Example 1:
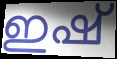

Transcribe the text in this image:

ഇഷ്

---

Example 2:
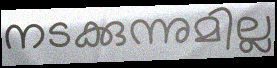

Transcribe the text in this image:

നടക്കുന്നുമില്ല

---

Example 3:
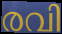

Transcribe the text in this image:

രവി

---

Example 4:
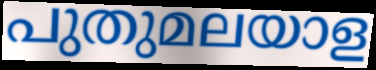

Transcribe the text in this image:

പുതുമലയാള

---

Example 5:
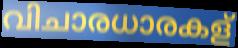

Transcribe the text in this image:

വിചാരധാരകള്